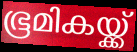
ഭൂമികയ്ക്ക്